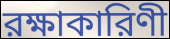
রক্ষাকারিণী